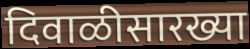
दिवाळीसारख्या